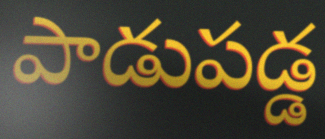
పాడుపడ్డ